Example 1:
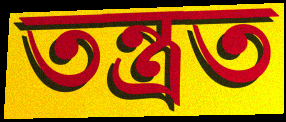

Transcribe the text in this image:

তন্ত্ৰত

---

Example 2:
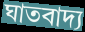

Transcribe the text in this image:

ঘাতবাদ্য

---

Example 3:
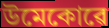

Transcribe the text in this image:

উমেকোৱে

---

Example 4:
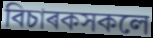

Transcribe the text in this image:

বিচাৰকসকলে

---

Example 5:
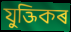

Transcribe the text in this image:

যুক্তিকৰ